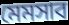
মেমসাব